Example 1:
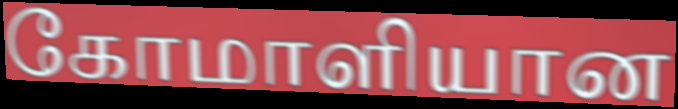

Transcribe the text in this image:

கோமாளியான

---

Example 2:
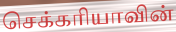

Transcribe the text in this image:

செக்கரியாவின்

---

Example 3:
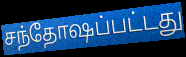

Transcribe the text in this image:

சந்தோஷப்பட்டது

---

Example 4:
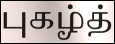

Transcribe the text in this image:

புகழ்த்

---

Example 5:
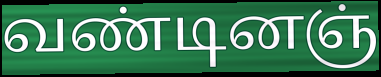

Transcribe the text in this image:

வண்டினஞ்